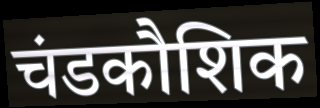
चंडकौशिक